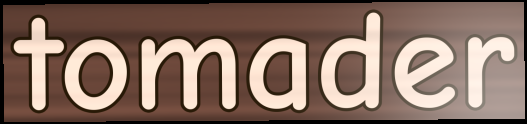
tomader